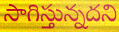
సాగిస్తున్నదని